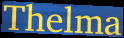
Thelma